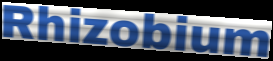
Rhizobium